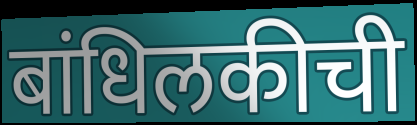
बांधिलकीची